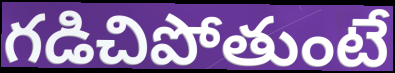
గడిచిపోతుంటే